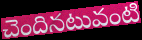
చెందినటువంటి